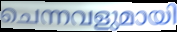
ചെന്നവളുമായി